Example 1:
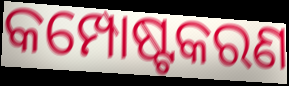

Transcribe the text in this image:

କମ୍ପୋଷ୍ଟକରଣ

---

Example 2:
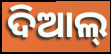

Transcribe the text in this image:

ଦିଆଲ୍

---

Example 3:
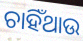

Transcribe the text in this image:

ଚାହିଁଥାଉ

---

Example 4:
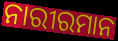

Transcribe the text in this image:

ନାରୀରମାନ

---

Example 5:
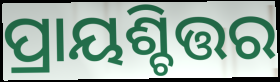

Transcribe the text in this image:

ପ୍ରାୟଶ୍ଚିତ୍ତର